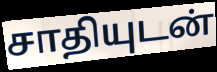
சாதியுடன்